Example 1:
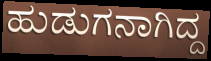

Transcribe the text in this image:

ಹುಡುಗನಾಗಿದ್ದ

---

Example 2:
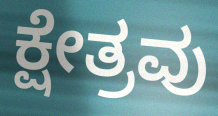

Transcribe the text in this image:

ಕ್ಷೇತ್ರವು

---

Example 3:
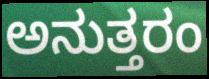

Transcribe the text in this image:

ಅನುತ್ತರಂ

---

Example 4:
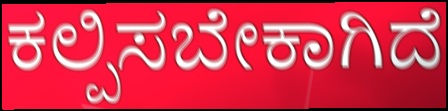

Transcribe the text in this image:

ಕಲ್ಪಿಸಬೇಕಾಗಿದೆ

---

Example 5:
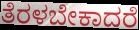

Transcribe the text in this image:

ತೆರಳಬೇಕಾದರೆ